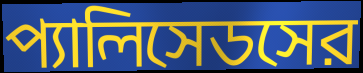
প্যালিসেডসের